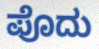
ಪೊದು